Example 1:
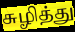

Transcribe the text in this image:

சுழித்து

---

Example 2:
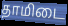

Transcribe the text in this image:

தாமிடை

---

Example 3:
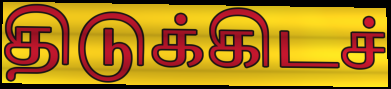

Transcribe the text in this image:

திடுக்கிடச்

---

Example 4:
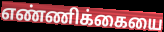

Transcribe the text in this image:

எண்ணிக்கையை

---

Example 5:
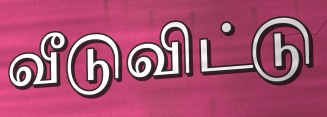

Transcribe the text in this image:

வீடுவிட்டு